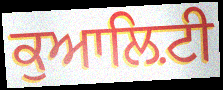
ਕੁਆਲ਼ਿਟੀ